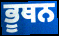
ਭੂਥਨ